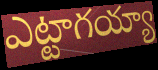
ఎట్టాగయ్యా